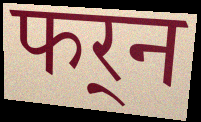
फर्न